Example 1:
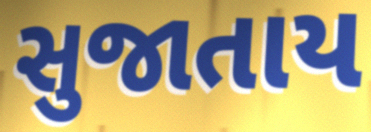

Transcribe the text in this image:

સુજાતાય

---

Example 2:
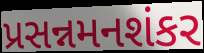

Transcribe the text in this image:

પ્રસન્નમનશંકર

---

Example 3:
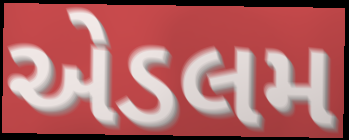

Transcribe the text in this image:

એડલમ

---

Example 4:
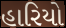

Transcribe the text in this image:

હારિયો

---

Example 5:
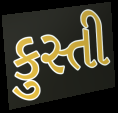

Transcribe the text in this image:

કુસ્તી